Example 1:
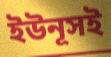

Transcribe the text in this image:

ইউনূসই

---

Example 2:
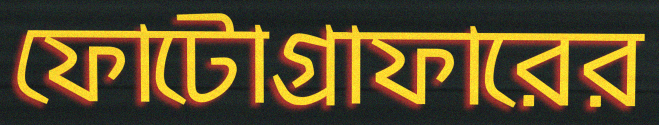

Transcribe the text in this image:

ফোটোগ্রাফারের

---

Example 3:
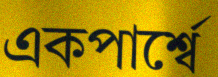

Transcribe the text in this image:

একপার্শ্বে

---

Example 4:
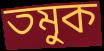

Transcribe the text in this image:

তমুক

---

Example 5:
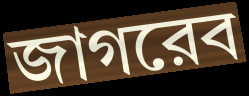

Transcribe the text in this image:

জাগরেব